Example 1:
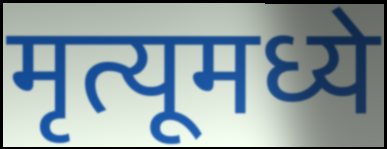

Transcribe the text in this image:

मृत्यूमध्ये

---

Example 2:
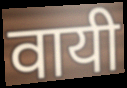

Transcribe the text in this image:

वायी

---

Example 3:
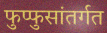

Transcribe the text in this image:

फुप्फुसांतर्गत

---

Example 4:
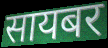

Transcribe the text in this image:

सायबर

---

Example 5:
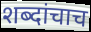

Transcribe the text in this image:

शब्दांचाच